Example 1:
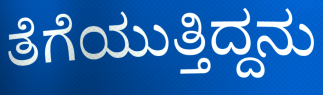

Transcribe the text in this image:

ತೆಗೆಯುತ್ತಿದ್ದನು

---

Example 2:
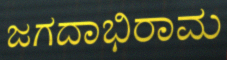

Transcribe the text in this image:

ಜಗದಾಭಿರಾಮ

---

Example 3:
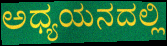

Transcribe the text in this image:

ಅಧ್ಯಯನದಲ್ಲಿ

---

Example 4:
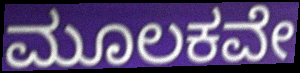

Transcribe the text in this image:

ಮೂಲಕವೇ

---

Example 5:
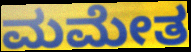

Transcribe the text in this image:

ಮಮೇತ